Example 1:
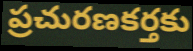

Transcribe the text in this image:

ప్రచురణకర్తకు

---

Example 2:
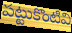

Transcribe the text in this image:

పట్టుకొంటివి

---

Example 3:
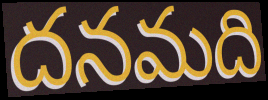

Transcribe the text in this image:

దనమది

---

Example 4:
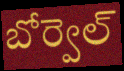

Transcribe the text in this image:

బోర్వెల్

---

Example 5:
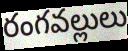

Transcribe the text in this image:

రంగవల్లులు